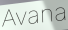
Avana